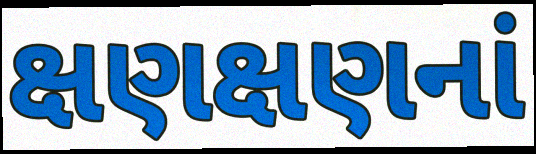
ક્ષણક્ષણનાં